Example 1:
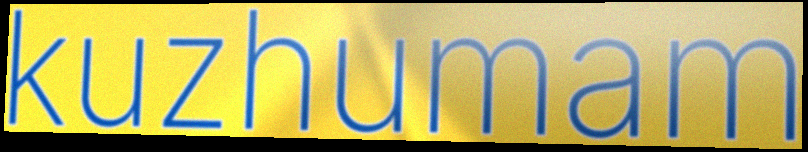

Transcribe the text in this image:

kuzhumam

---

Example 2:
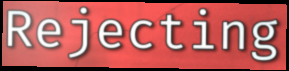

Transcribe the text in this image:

Rejecting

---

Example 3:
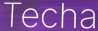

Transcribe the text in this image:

Techa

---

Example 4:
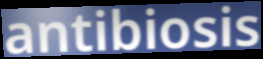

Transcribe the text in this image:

antibiosis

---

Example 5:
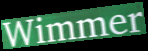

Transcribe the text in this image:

Wimmer